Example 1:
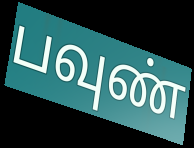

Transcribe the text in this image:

பவுண்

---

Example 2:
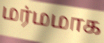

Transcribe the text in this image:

மர்மமாக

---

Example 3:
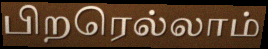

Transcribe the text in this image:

பிறரெல்லாம்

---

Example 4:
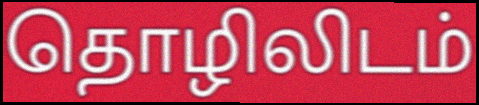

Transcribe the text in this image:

தொழிலிடம்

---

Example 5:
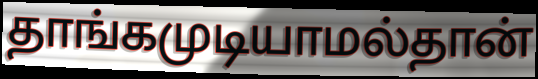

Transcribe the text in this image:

தாங்கமுடியாமல்தான்